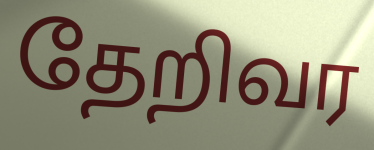
தேறிவர